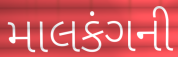
માલકંગની